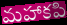
మహాకపి